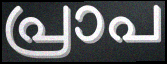
പ്രാപ